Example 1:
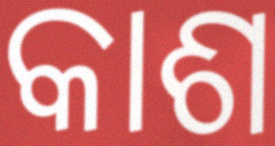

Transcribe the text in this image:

କାଶ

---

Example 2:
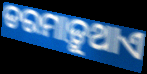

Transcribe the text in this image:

ଡରମାଡ଼ୁଥାଏ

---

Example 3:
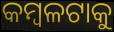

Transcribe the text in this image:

କମ୍ବଳଟାକୁ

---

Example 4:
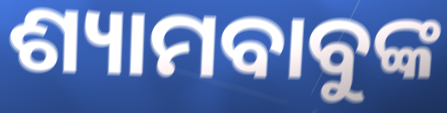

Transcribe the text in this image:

ଶ୍ୟାମବାବୁଙ୍କ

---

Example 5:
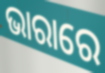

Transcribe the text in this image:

ଭାରାରେ